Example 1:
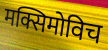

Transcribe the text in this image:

मक्सिमोविच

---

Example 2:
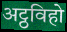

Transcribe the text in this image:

अट्ठविहो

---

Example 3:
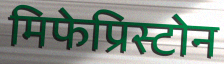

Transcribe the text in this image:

मिफेप्रिस्टोन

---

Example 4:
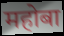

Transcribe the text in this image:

महोबा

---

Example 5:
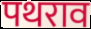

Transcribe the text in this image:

पथराव